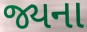
જ્યના